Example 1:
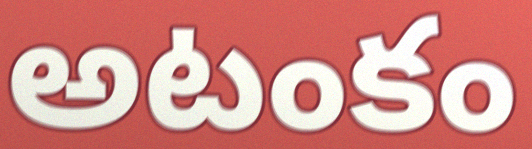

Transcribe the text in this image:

అటంకం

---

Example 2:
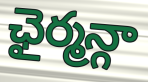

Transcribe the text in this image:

ఛైర్మన్గా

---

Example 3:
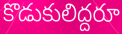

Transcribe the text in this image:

కొడుకులిద్దరూ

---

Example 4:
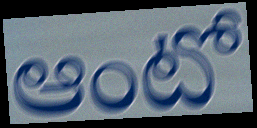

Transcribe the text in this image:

ఆంటో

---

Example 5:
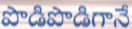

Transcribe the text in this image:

పొడిపొడిగానే